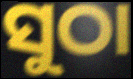
ସୁଠା